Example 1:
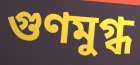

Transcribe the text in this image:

গুণমুগ্ধ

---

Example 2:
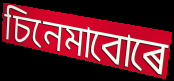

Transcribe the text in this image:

চিনেমাবোৰে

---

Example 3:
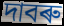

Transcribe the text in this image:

দাবৰু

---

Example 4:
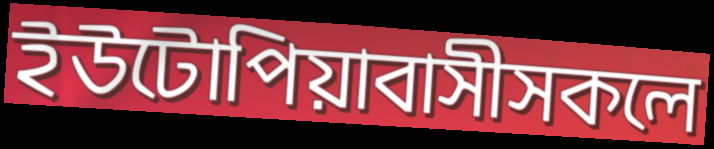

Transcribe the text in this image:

ইউটোপিয়াবাসীসকলে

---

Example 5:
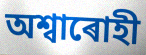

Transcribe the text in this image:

অশ্বাৰোহী